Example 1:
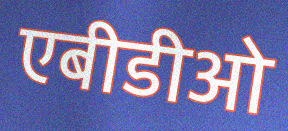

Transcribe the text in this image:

एबीडीओ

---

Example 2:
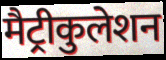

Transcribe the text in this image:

मैट्रीकुलेशन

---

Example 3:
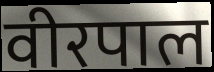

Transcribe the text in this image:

वीरपाल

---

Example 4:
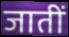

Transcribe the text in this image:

जातीं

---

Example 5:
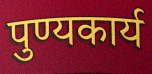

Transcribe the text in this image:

पुण्यकार्य